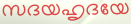
സദയഹൃദയേ